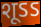
शूऽऽ